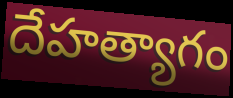
దేహత్యాగం